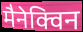
मैनेक्विन